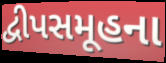
દ્વીપસમૂહના